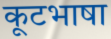
कूटभाषा